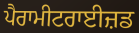
ਪੈਰਾਮੀਟਰਾਈਜ਼ਡ